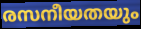
രസനീയതയും